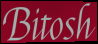
Bitosh